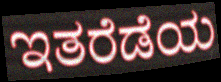
ಇತರೆಡೆಯ